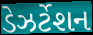
ડેઝર્ટેશન